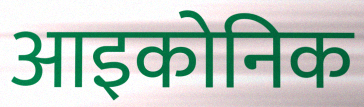
आइकोनिक